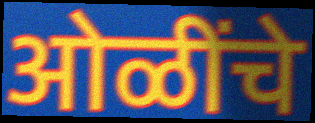
ओळींचे